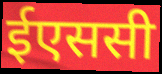
ईएससी